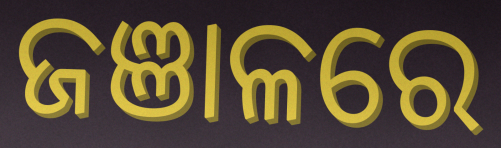
ଜଞାଳରେ